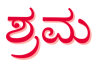
ಶ್ರಮ